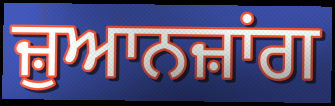
ਜ਼ੁਆਨਜ਼ਾਂਗ